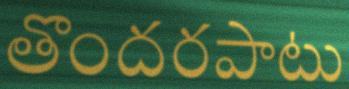
తొందరపాటు